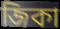
জিকা